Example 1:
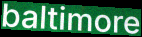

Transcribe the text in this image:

baltimore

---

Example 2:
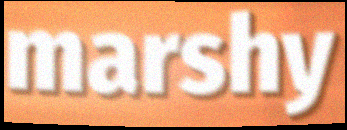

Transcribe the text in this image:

marshy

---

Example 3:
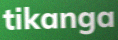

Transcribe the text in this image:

tikanga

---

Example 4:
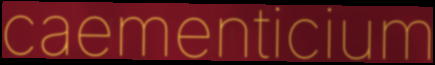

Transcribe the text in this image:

caementicium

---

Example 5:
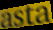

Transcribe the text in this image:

asta